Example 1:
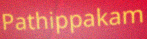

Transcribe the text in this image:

Pathippakam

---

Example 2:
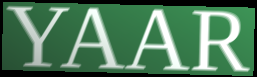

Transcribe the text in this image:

YAAR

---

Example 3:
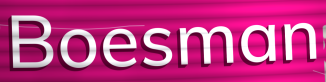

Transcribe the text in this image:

Boesman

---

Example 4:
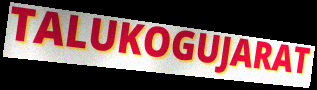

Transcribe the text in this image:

TALUKOGUJARAT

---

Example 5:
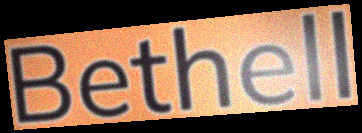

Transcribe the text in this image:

Bethell